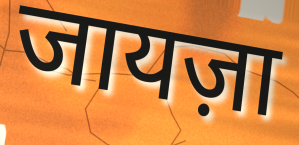
जायज़ा